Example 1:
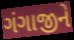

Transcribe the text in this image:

ગંગાજીને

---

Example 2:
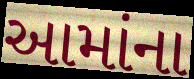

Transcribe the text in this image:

આમાંના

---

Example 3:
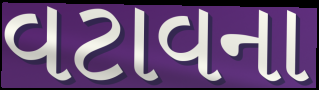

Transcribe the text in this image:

વટાવના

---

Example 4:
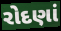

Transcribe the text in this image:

રોદણાં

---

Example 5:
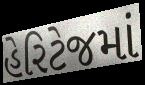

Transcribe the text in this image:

હેરિટેજમાં